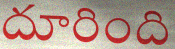
దూరింది